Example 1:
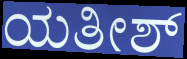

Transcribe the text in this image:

ಯತೀಶ್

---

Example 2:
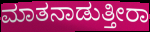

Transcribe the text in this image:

ಮಾತನಾಡುತ್ತೀರಾ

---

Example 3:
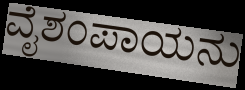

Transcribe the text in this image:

ವೈಶಂಪಾಯನು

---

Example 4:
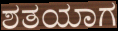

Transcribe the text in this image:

ಶತಯಾಗ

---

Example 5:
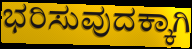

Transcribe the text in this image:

ಭರಿಸುವುದಕ್ಕಾಗಿ